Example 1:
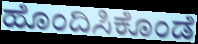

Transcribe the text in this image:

ಹೊಂದಿಸಿಕೊಂಡೆ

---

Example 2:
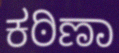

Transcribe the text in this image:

ಕಠಿಣಾ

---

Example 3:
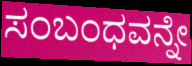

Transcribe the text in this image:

ಸಂಬಂಧವನ್ನೇ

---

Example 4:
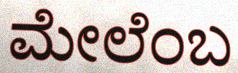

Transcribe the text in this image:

ಮೇಲೆಂಬ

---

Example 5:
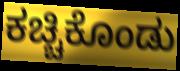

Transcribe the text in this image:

ಕಚ್ಚಿಕೊಂಡು